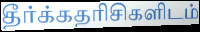
தீர்க்கதரிசிகளிடம்